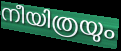
നീയിത്രയും